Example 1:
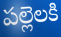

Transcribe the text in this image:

పల్లెలకి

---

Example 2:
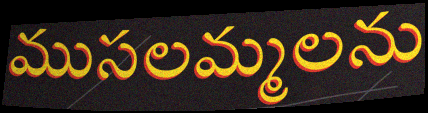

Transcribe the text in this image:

ముసలమ్మలను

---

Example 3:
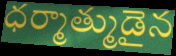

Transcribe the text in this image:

ధర్మాత్ముడైన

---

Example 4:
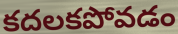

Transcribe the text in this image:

కదలకపోవడం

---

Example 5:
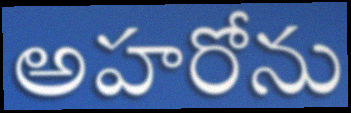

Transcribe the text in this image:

అహరోను